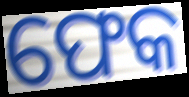
ଫେକ